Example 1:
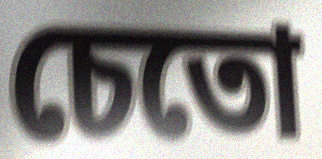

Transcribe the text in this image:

চেতো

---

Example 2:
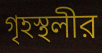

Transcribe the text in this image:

গৃহস্থলীর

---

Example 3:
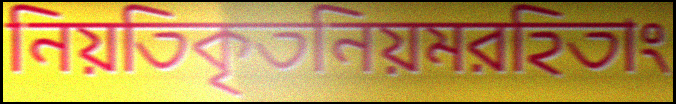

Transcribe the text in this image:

নিয়তিকৃতনিয়মরহিতাং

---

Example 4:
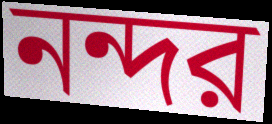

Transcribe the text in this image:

নন্দর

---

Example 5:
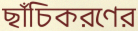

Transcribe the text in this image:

ছাঁচিকরণের